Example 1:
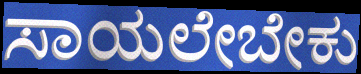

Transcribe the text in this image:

ಸಾಯಲೇಬೇಕು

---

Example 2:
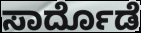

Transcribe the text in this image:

ಸಾರ್ದೊಡೆ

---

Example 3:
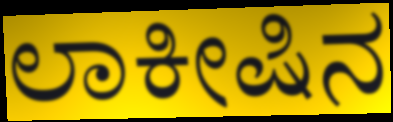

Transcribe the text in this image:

ಲಾಕೀಷಿನ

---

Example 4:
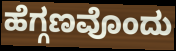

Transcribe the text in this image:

ಹೆಗ್ಗಣವೊಂದು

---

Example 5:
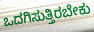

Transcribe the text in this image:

ಒದಗಿಸುತ್ತಿರಬೇಕು